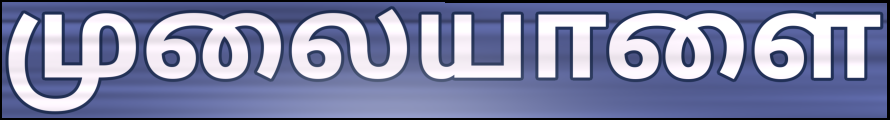
முலையாளை